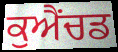
ਕੁਐਂਚਡ